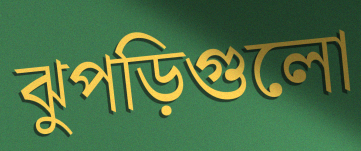
ঝুপড়িগুলো